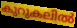
കുറുകലിൽ